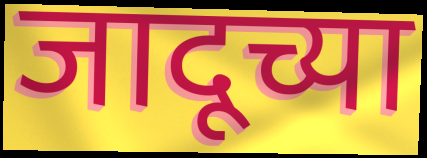
जादूच्या